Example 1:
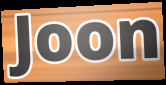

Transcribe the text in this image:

Joon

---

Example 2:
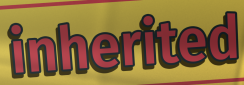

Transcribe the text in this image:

inherited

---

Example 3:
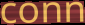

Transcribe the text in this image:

conn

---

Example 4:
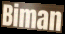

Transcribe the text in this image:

Biman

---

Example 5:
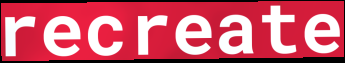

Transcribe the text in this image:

recreate